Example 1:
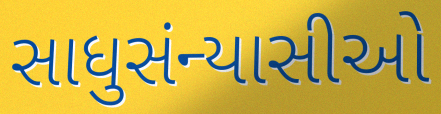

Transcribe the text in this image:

સાધુસંન્યાસીઓ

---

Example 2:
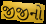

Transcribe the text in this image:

જીજીનો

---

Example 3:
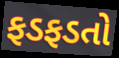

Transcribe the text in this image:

ફડફડતો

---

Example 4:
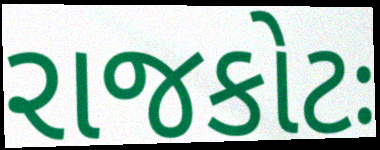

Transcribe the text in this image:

રાજકોટઃ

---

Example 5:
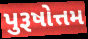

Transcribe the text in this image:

પુરૂષોત્તમ